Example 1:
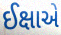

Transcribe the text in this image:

ઈક્ષાએ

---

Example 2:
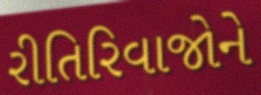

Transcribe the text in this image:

રીતિરિવાજોને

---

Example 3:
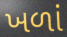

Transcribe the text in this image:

ખળાં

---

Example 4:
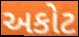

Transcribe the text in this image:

અકોટ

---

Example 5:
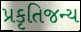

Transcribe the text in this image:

પ્રકૃતિજન્ય